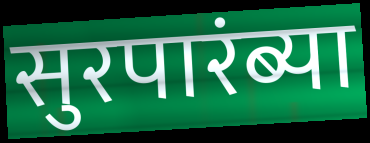
सुरपारंब्या